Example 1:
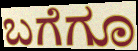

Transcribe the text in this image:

ಬಗೆಗೂ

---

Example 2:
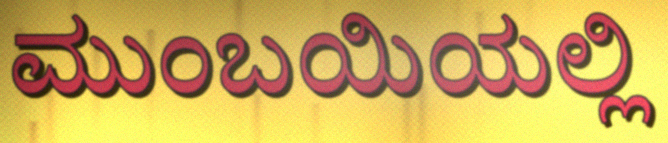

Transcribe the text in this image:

ಮುಂಬಯಿಯಲ್ಲಿ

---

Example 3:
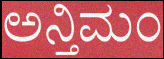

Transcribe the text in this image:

ಅನ್ತಿಮಂ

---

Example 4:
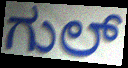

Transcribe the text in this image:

ಗುಲ್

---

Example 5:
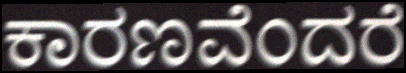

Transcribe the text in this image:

ಕಾರಣವೆಂದರೆ